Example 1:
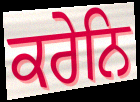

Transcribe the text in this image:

ਕਰੇਨਿ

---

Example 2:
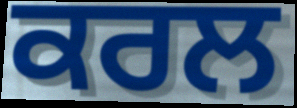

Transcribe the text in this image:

ਕਰਲ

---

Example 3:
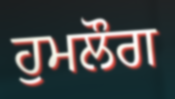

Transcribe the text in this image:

ਹੁਮਲੌਗ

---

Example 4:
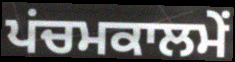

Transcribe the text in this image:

ਪਂਚਮਕਾਲਮੇਂ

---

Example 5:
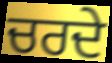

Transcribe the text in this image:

ਚਰਦੇ